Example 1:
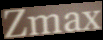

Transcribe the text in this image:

Zmax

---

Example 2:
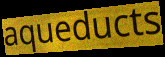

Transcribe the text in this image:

aqueducts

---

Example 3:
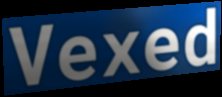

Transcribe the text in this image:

Vexed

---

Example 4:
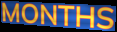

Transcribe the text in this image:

MONTHS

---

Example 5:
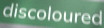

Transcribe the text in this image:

discoloured